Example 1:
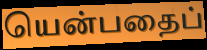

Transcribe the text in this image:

யென்பதைப்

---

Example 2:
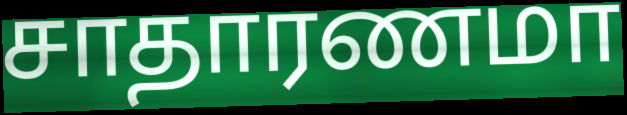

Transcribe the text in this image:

சாதாரணமா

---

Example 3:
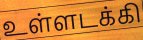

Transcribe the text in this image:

உள்ளடக்கி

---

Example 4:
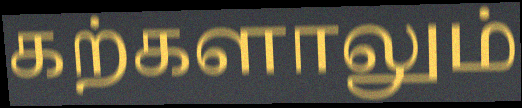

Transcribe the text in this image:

கற்களாலும்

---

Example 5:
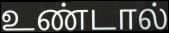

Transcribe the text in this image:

உண்டால்